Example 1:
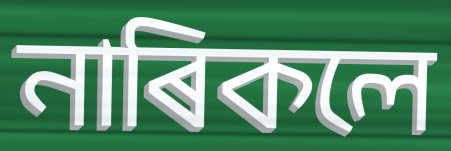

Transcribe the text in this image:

নাৰিকলে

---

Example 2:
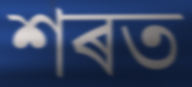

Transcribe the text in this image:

শৰত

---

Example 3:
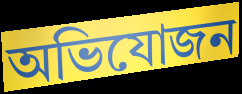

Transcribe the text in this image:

অভিযোজন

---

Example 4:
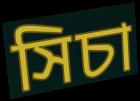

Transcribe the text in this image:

সিচা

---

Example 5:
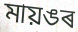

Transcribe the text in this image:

মায়ঙৰ